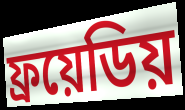
ফ্রয়েডিয়